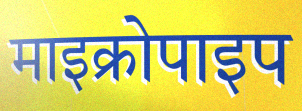
माइक्रोपाइप